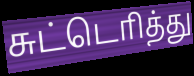
சுட்டெரித்து